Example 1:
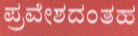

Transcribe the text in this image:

ಪ್ರವೇಶದಂತಹ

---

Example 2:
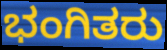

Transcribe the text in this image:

ಭಂಗಿತರು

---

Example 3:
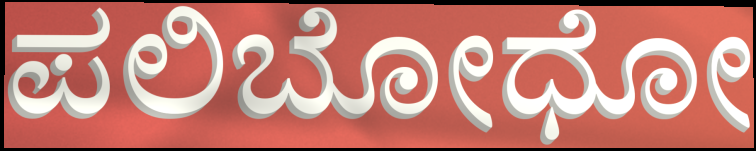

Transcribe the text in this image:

ಪಲಿಬೋಧೋ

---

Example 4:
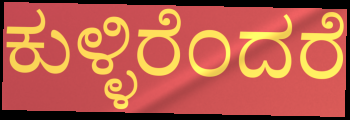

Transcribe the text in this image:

ಕುಳ್ಳಿರೆಂದರೆ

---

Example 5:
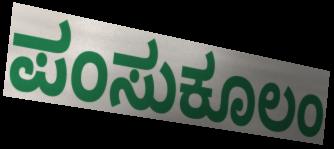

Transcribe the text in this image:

ಪಂಸುಕೂಲಂ